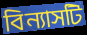
বিন্যাসটি